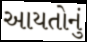
આયતોનું